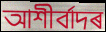
আশীৰ্বাদৰ